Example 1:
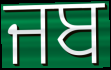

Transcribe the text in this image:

ਜਬ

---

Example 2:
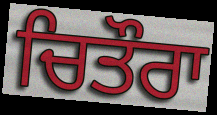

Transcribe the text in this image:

ਚਿਤੌਰਾ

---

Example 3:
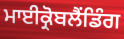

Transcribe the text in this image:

ਮਾਈਕ੍ਰੋਬਲੈਂਡਿੰਗ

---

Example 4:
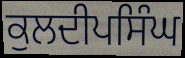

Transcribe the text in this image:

ਕੁਲਦੀਪਸਿੰਘ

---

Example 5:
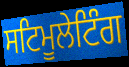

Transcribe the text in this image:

ਸਟਿਮੂਲੇਟਿੰਗ